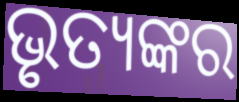
ଭୃତ୍ୟଙ୍କର